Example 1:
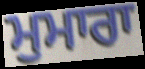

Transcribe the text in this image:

ਮੁਮਾਰਾ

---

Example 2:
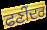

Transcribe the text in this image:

ਫਣੀਂਦਰ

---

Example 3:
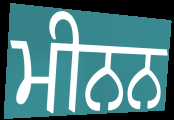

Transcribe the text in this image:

ਮੀਨਨ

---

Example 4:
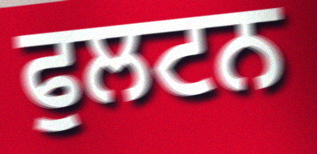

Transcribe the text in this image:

ਫੁਲਟਨ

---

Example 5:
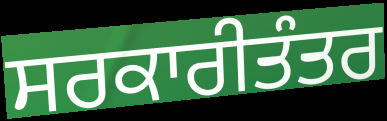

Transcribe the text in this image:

ਸਰਕਾਰੀਤੰਤਰ